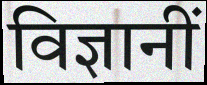
विज्ञानीं